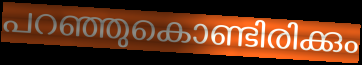
പറഞ്ഞുകൊണ്ടിരിക്കും